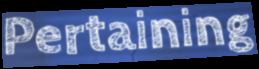
Pertaining